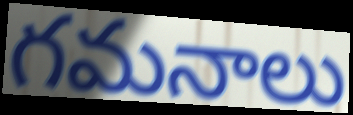
గమనాలు